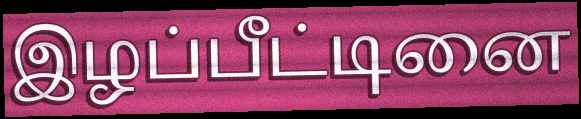
இழப்பீட்டினை